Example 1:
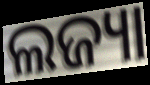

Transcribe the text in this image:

ଲଜ୍ୟା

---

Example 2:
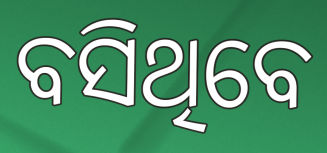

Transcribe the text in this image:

ବସିଥିବେ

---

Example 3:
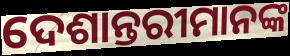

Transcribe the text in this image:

ଦେଶାନ୍ତରୀମାନଙ୍କ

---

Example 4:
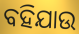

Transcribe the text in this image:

ବହିଯାଉ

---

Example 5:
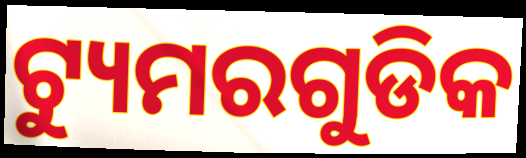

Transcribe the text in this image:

ଟ୍ୟୁମରଗୁଡିକ